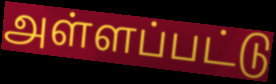
அள்ளப்பட்டு